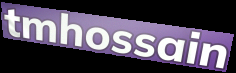
tmhossain